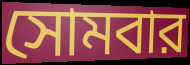
সোমবার